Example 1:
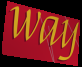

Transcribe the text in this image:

way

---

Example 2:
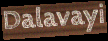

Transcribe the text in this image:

Dalavayi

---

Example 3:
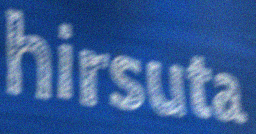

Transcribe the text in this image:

hirsuta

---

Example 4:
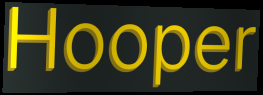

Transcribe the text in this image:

Hooper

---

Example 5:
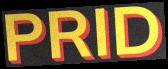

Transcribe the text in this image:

PRID